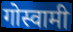
गोस्वामी